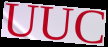
UUC